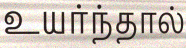
உயர்ந்தால்